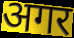
अगर